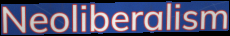
Neoliberalism